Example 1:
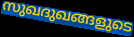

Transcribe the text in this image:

സുഖദുഖങ്ങളുടെ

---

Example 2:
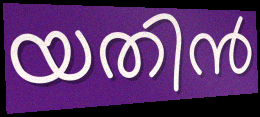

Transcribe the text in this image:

യതിൻ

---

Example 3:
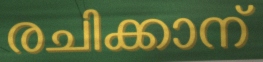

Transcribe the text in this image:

രചിക്കാന്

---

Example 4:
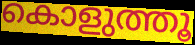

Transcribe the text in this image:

കൊളുത്തൂ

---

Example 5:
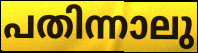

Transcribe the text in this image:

പതിന്നാലു